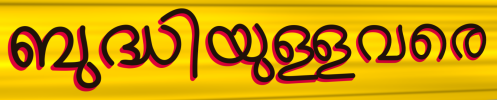
ബുദ്ധിയുള്ളവരെ